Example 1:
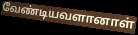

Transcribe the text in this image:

வேண்டியவளானாள்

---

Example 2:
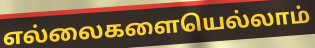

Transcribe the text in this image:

எல்லைகளையெல்லாம்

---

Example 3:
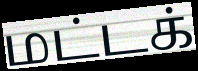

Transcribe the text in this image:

மட்டக்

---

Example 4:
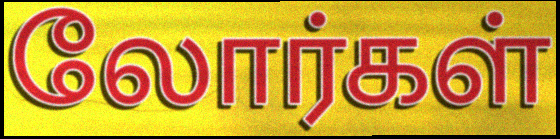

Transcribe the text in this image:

லோர்கள்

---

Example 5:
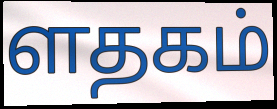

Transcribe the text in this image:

ளதகம்